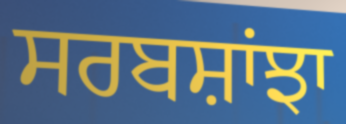
ਸਰਬਸ਼ਾਂਝਾ